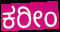
ಕರೀಂ